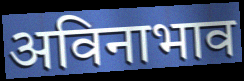
अविनाभाव